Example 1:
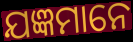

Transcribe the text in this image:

ଯଜ୍ଞମାନେ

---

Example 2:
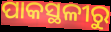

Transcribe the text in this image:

ପାକସ୍ଥଳୀରୁ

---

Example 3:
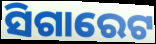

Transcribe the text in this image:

ସିଗାରେଟ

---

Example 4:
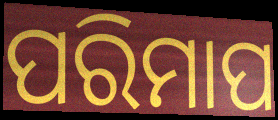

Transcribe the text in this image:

ପରିମାପ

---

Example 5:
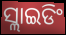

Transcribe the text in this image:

ସ୍ଲାଇଡିଂ